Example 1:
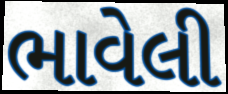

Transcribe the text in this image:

ભાવેલી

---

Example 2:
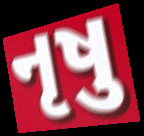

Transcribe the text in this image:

નૃષુ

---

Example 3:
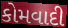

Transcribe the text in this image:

કોમવાદી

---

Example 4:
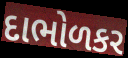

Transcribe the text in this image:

દાભોળકર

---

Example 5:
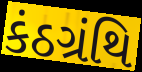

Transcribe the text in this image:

કંઠગ્રંથિ